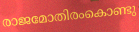
രാജമോതിരംകൊണ്ടു